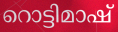
റൊട്ടിമാഷ്